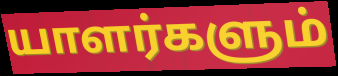
யாளர்களும்